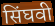
सिंघवी